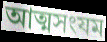
আত্মসংযম